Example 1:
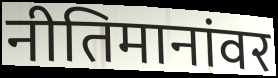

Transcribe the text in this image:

नीतिमानांवर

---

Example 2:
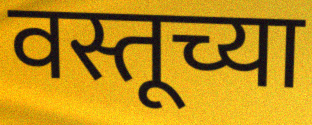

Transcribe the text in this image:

वस्तूच्या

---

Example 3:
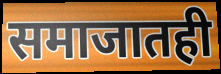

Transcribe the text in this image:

समाजातही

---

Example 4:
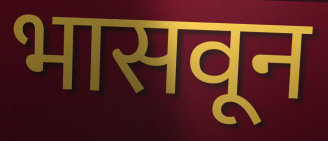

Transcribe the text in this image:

भासवून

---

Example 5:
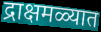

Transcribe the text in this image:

द्राक्षमळ्यात